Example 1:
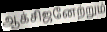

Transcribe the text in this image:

ஆக்சிஜனேற்றும்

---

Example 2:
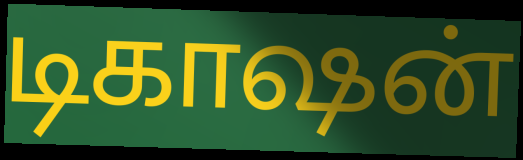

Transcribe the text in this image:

டிகாஷன்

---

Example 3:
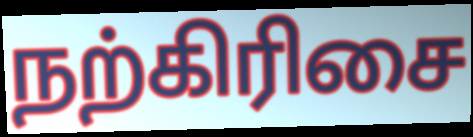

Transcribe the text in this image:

நற்கிரிசை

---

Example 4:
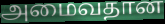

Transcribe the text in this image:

அமைவதான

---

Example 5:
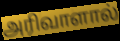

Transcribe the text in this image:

அரிவாளால்